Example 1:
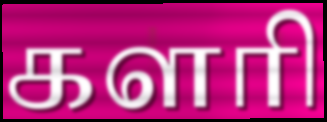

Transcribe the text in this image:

களரி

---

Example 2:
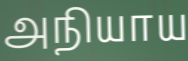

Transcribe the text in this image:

அநியாய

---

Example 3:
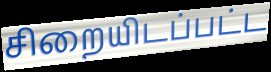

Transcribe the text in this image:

சிறையிடப்பட்ட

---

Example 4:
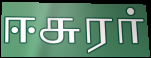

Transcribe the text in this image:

ஈசுரர்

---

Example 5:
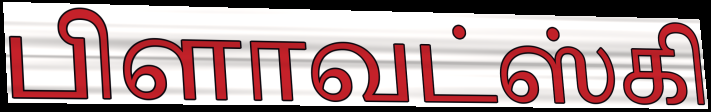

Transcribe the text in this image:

பிளாவட்ஸ்கி